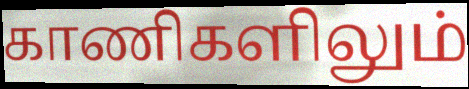
காணிகளிலும்